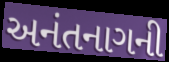
અનંતનાગની